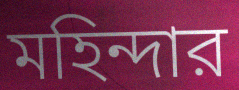
মহিন্দার